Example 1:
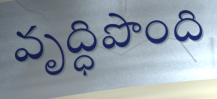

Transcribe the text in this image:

వృద్ధిపొంది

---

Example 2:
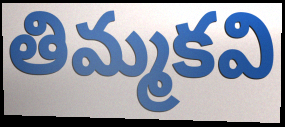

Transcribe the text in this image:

తిమ్మకవి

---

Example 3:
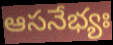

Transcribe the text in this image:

ఆసనేభ్యః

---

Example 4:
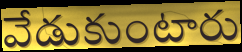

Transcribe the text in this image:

వేడుకుంటారు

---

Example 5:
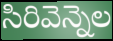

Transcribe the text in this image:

సిరివెన్నెల